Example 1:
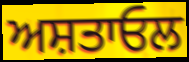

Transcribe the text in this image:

ਅਸ਼ਤਾਓਲ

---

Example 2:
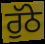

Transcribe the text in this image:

ਰੁੱਠੇ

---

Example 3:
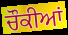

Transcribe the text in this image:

ਚੌਕੀਆਂ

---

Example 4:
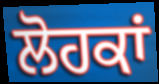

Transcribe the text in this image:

ਲੋਹਕਾਂ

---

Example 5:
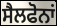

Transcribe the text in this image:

ਸੈਲਫੋਨਾਂ